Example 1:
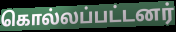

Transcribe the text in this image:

கொல்லப்பட்டனர்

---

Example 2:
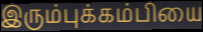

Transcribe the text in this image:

இரும்புக்கம்பியை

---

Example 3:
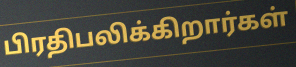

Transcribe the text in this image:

பிரதிபலிக்கிறார்கள்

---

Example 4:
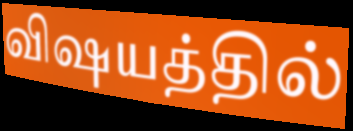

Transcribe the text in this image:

விஷயத்தில்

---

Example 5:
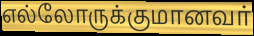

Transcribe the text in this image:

எல்லோருக்குமானவர்